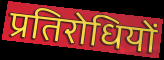
प्रतिरोधियों